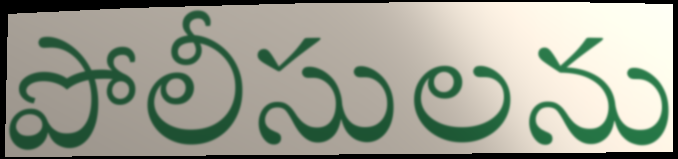
పోలీసులను